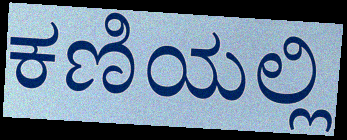
ಕಣಿಯಲ್ಲಿ